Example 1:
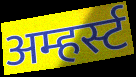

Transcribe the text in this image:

अम्हर्स्ट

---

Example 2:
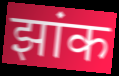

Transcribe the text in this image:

झांक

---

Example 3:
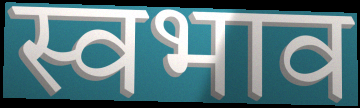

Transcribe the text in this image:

स्वभाव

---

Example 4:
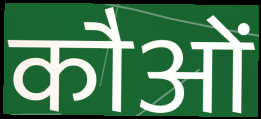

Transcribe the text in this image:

कौओं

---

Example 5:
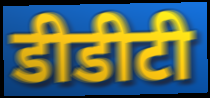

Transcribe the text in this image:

डीडीटी